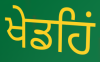
ਖੇਡਹਿਂ